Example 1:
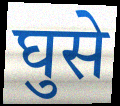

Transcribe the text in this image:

घुसे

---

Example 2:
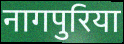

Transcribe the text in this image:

नागपुरिया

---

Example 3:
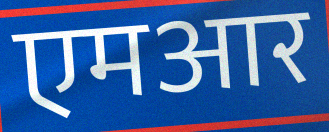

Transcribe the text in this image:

एमआर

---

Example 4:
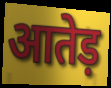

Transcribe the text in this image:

आतेड़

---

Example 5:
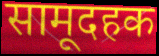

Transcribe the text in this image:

सामूदहक